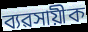
ব্যৱসায়ীক